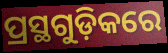
ପ୍ରସ୍ଥଗୁଡ଼ିକରେ